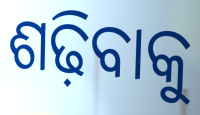
ଶଢ଼ିବାକୁ